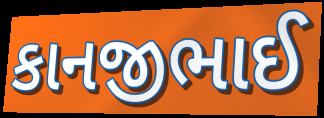
કાનજીભાઈ